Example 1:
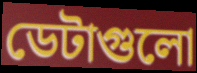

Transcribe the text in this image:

ডেটাগুলো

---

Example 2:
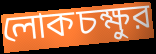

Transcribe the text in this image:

লোকচক্ষুর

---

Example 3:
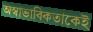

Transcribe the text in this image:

অস্বাভাবিকতাকেই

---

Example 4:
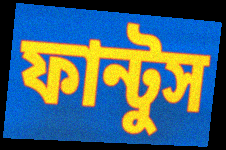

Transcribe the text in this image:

ফান্টুস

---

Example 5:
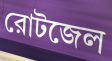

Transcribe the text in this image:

রোটজেল